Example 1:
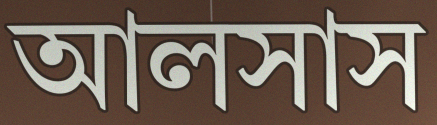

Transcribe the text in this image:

আলসাস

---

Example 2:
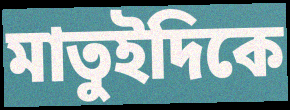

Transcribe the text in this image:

মাতুইদিকে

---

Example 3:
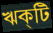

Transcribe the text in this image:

ঋক্‌টি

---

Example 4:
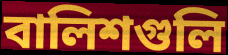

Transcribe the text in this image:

বালিশগুলি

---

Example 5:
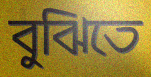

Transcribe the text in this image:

বুঝিতে